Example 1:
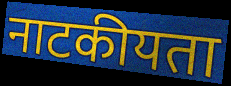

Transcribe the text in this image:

नाटकीयता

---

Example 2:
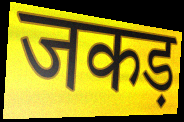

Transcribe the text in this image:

जकड़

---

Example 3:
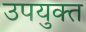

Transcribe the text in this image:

उपयुक्त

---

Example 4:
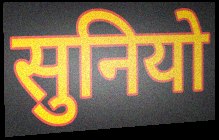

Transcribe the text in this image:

सुनियो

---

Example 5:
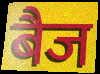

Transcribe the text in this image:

बैज